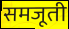
समजूती